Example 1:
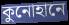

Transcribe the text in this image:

কুনোহানে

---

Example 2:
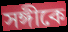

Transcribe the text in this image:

সঙ্গীকে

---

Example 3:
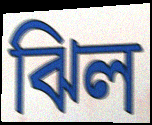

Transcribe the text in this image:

ঝিল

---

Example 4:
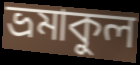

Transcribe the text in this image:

ভ্রমাকুল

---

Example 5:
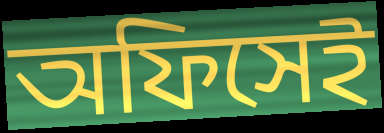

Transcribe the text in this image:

অফিসেই